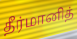
தீர்மானித்